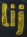
lij